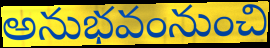
అనుభవంనుంచి